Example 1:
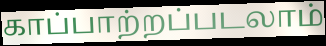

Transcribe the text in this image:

காப்பாற்றப்படலாம்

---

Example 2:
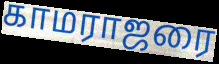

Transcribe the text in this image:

காமராஜரை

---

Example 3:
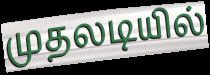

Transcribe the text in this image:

முதலடியில்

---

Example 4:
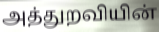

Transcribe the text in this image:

அத்துறவியின்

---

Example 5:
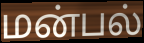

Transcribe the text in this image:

மன்பல்